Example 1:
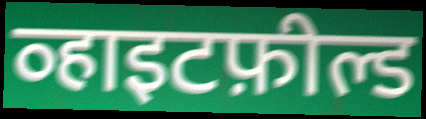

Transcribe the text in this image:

व्हाइटफ़ील्ड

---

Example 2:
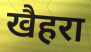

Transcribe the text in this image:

खैहरा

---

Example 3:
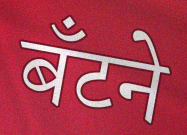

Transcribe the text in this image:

बँटने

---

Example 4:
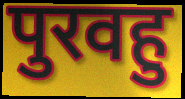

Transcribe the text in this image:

पुरवहु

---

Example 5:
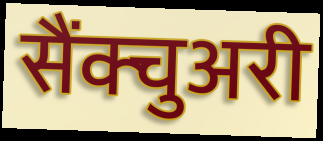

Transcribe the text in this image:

सैंक्चुअरी